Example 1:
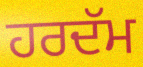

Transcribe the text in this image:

ਹਰਦੱਮ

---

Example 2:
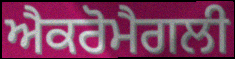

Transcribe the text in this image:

ਐਕਰੋਮੈਗਲੀ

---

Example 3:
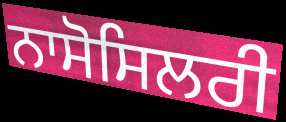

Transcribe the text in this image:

ਨਾਸੋਸਿਲਰੀ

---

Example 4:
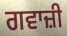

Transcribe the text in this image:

ਗਵਾਜ਼ੀ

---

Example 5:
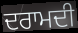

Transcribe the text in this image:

ਦਰਾਮਦੀ